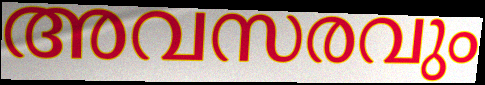
അവസരവും